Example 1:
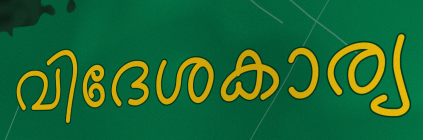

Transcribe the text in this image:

വിദേശകാര്യ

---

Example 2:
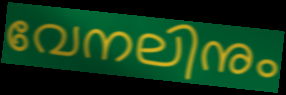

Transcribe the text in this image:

വേനലിനും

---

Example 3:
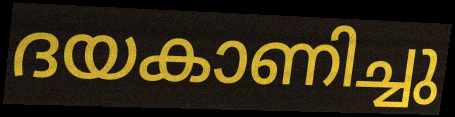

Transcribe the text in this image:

ദയകാണിച്ചു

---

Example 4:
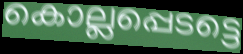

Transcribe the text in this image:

കൊല്ലപ്പെടട്ടെ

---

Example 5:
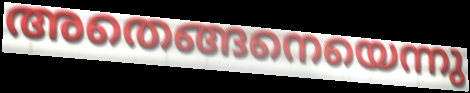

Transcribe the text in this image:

അതെങ്ങനെയെന്നു